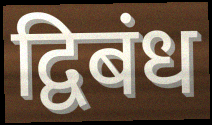
द्विबंध